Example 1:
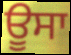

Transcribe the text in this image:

ਊਸਾ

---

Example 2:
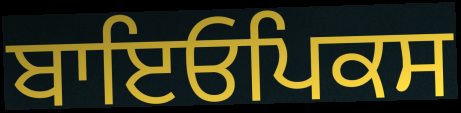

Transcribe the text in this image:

ਬਾਇਓਪਿਕਸ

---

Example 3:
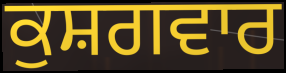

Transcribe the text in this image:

ਕੁਸ਼ਗਵਾਰ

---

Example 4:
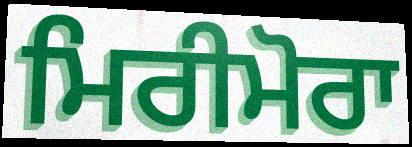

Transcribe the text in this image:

ਮਿਰੀਮੋਰਾ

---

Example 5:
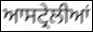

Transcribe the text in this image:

ਆਸਟ੍ਰੇਲੀਆਂ